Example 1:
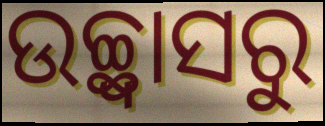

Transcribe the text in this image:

ଉଚ୍ଛ୍ୱାସରୁ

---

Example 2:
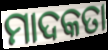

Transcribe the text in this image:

ମାଦକତା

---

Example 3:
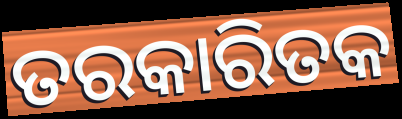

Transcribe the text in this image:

ତରକାରିତକ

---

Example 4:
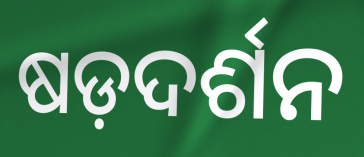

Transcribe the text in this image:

ଷଡ଼ଦର୍ଶନ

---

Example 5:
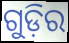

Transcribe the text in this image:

ଗୁଡ଼ିର